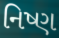
નિષ્ણ